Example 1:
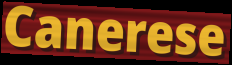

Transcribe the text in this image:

Canerese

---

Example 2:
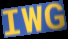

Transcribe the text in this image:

IWG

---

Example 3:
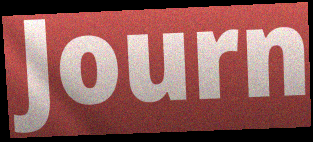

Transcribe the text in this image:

Journ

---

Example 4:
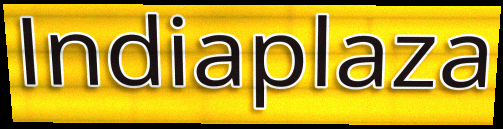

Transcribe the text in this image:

Indiaplaza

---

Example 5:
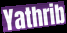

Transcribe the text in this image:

Yathrib